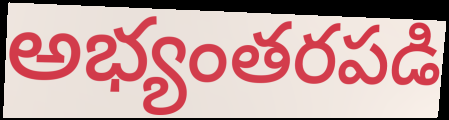
అభ్యంతరపడి